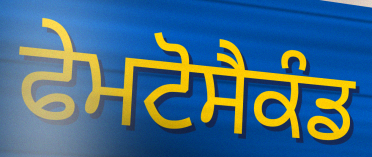
ਫੇਮਟੋਸੈਕੰਡ